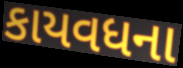
કાયવધના